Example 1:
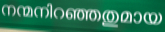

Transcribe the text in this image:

നന്മനിറഞ്ഞതുമായ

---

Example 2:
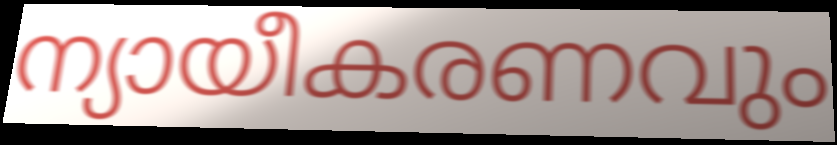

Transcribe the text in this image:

ന്യായീകരണവും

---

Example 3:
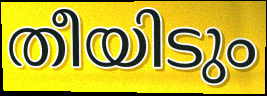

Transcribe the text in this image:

തീയിടും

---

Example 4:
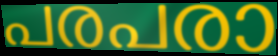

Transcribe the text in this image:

പരപരാ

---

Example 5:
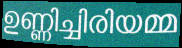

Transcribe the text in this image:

ഉണ്ണിച്ചിരിയമ്മ